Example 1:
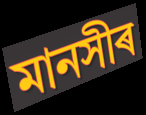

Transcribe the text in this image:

মানসীৰ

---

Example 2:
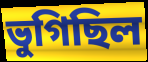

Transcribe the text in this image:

ভুগিছিল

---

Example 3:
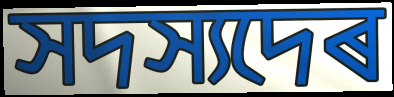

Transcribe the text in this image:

সদস্যদেৰ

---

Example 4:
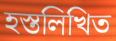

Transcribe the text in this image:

হস্তলিখিত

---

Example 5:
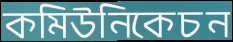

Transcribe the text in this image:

কমিউনিকেচন